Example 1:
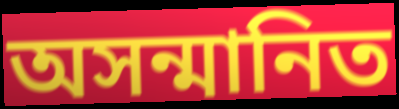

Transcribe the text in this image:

অসন্মানিত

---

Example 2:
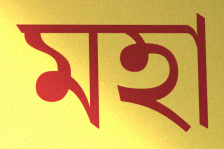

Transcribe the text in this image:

মহা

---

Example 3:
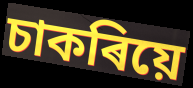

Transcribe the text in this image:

চাকৰিয়ে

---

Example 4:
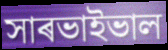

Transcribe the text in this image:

সাৰভাইভাল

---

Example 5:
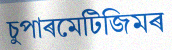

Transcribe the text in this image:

চুপাৰমেটিজিমৰ